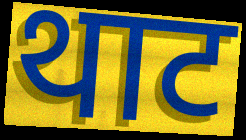
थाट